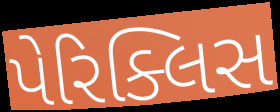
પેરિક્લિસ